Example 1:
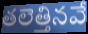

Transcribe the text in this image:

తలెత్తినవే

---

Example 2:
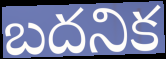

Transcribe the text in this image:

బదనిక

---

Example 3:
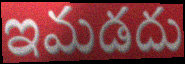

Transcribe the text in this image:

ఇమడదు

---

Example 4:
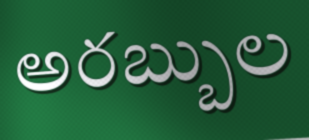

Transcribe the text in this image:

అరబ్బుల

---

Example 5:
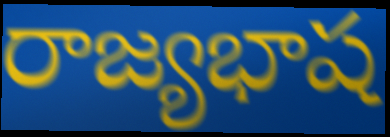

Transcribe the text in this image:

రాజ్యభాష